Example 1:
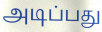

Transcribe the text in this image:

அடிப்பது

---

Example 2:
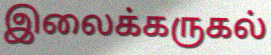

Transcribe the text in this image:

இலைக்கருகல்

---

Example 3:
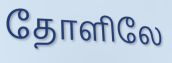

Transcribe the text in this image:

தோளிலே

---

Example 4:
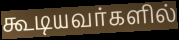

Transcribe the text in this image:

கூடியவர்களில்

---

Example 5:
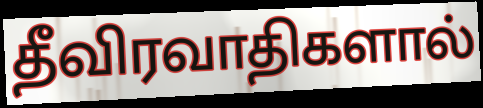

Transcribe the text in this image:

தீவிரவாதிகளால்